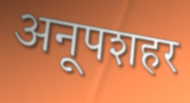
अनूपशहर